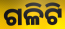
ଗଳିଟି